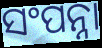
ସଂପନ୍ନା